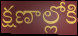
క్షణాల్లోకి